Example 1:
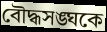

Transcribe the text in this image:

বৌদ্ধসঙ্ঘকে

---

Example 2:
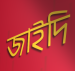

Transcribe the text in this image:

জাইদি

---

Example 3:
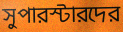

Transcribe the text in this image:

সুপারস্টারদের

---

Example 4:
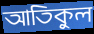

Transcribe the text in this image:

আতিকুল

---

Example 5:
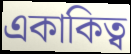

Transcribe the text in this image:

একাকিত্ব